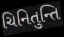
ચિનિતુન્તિ